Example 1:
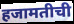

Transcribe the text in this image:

हजामतीची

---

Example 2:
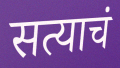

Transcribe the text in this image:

सत्याचं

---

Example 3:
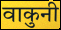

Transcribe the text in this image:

वाकुनी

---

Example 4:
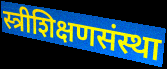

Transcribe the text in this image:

स्त्रीशिक्षणसंस्था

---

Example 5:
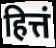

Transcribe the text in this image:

हित्तं